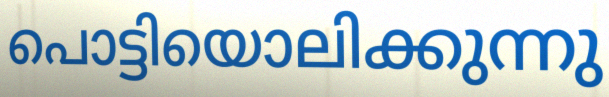
പൊട്ടിയൊലിക്കുന്നു